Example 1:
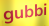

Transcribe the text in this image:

gubbi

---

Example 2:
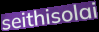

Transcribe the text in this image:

seithisolai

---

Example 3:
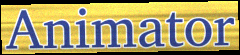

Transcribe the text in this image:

Animator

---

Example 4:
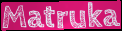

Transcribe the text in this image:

Matruka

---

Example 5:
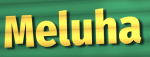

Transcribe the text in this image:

Meluha